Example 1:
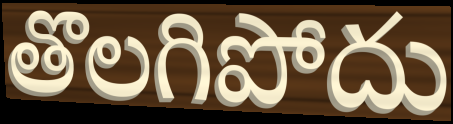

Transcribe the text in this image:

తొలగిపోదు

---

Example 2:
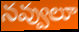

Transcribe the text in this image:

నవ్వులూ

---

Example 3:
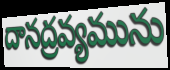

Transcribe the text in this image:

దానద్రవ్యమును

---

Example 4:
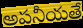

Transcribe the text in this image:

అపనీయతే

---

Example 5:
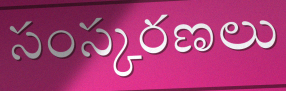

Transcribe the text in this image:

సంస్కరణలు